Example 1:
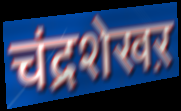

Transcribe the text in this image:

चंद्रशेखऱ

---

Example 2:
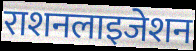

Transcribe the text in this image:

राशनलाइजेशन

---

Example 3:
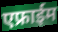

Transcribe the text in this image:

एफ्राईम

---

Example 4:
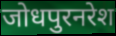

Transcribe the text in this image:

जोधपुरनरेश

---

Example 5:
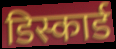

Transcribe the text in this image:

डिस्कार्ड